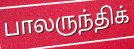
பாலருந்திக்